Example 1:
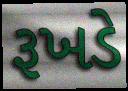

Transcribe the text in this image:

રૂખડે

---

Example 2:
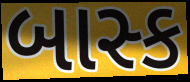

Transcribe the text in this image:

બાસ્ક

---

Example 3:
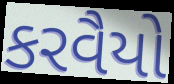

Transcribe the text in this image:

કરવૈયો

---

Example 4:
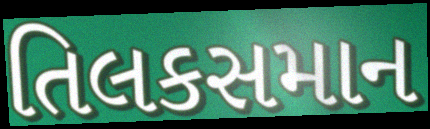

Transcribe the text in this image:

તિલકસમાન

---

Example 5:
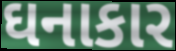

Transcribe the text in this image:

ઘનાકાર